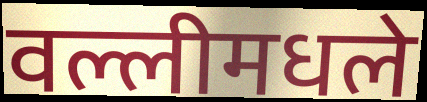
वल्लीमधले